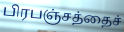
பிரபஞ்சத்தைச்